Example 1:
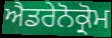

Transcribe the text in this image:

ਐਡਰੇਨੋਕ੍ਰੋਮ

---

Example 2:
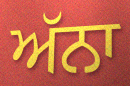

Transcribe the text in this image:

ਅੱਨਾ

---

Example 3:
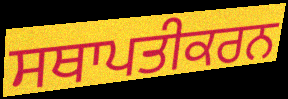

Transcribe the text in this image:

ਸਥਾਪਤੀਕਰਨ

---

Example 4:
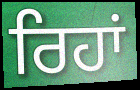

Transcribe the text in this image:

ਰਿਹਾਂ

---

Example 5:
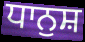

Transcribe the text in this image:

ਧਾਨੁਸ਼